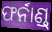
ଫର୍ନାଣ୍ଡ୍